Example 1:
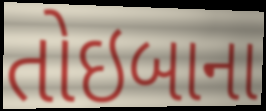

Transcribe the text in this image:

તોઇબાના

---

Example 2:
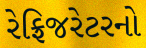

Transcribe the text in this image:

રેફ્રિજરેટરનો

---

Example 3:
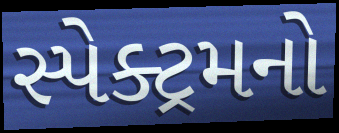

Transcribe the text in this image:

સ્પેક્ટ્રમનો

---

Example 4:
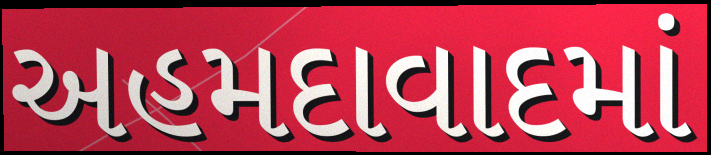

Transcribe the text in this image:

અહમદાવાદમાં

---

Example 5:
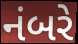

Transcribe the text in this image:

નંબરે